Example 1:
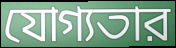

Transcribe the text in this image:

যোগ্যতার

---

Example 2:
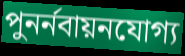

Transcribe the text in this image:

পুনর্নবায়নযোগ্য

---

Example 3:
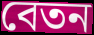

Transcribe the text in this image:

বেতন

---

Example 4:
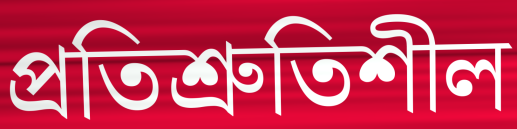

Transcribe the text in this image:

প্রতিশ্রুতিশীল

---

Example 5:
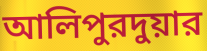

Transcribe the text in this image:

আলিপুরদুয়ার